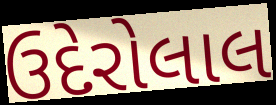
ઉદેરોલાલ